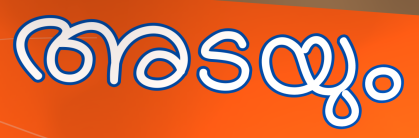
അടയും